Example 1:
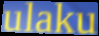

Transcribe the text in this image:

ulaku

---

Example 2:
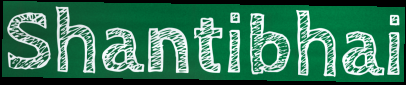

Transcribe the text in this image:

Shantibhai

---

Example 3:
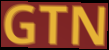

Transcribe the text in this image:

GTN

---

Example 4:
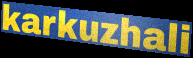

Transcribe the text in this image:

karkuzhali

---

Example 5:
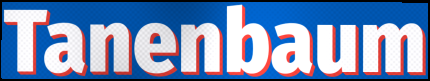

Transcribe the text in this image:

Tanenbaum